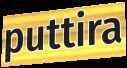
puttira